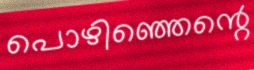
പൊഴിഞ്ഞെന്റെ